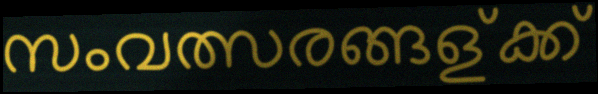
സംവത്സരങ്ങള്ക്ക്